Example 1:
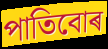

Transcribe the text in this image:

পাতিবোৰ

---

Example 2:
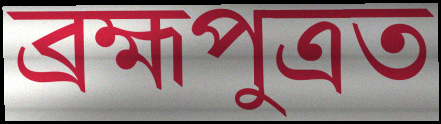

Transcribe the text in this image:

ব্ৰহ্মপুত্ৰত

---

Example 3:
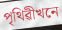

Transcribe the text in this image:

পৃথিৱীখনে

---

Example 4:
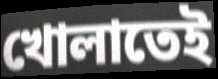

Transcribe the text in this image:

খোলাতেই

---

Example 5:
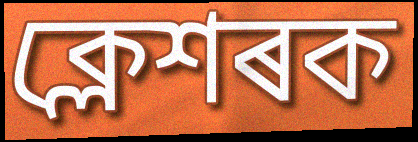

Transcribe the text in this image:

ক্লেশৰক